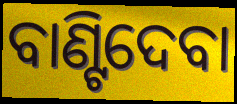
ବାଣ୍ଟିଦେବା